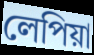
লেপিয়া